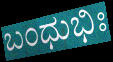
ಬಂಧುಭಿಃ